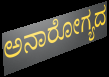
ಅನಾರೋಗ್ಯದ